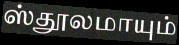
ஸ்தூலமாயும்